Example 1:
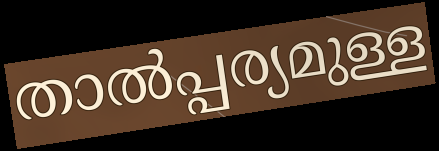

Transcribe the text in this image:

താൽപ്പര്യമുള്ള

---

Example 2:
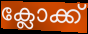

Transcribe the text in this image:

ക്ലോക്ക്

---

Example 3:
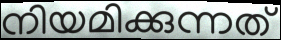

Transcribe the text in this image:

നിയമിക്കുന്നത്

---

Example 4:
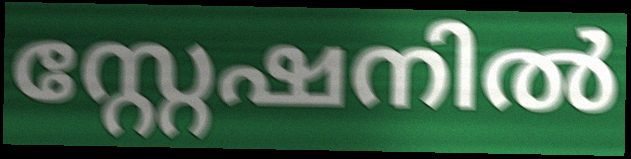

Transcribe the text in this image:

സ്റ്റേഷനിൽ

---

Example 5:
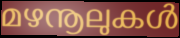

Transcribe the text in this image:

മഴനൂലുകൾ